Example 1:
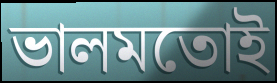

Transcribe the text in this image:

ভালমতোই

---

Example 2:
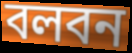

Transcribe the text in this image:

বলবন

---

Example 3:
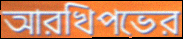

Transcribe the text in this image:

আরখিপভের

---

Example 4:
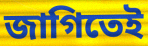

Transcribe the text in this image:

জাগিতেই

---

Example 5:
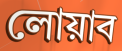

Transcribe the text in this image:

লোয়াব